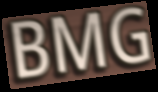
BMG